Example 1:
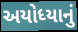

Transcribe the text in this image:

અયોધ્યાનું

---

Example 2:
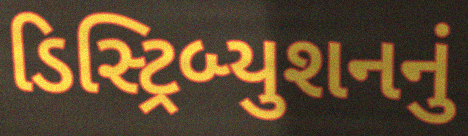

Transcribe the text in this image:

ડિસ્ટ્રિબ્યુશનનું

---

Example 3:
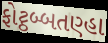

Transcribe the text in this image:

ફોટ્ઠબ્બતણ્હા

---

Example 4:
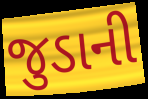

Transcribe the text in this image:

જુડાની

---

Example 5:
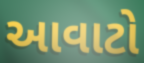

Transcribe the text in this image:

આવાટો